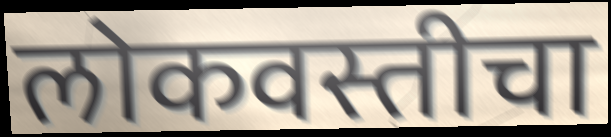
लोकवस्तीचा